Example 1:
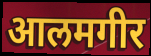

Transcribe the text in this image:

आलमगीर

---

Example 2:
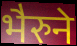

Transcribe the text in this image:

भैरुने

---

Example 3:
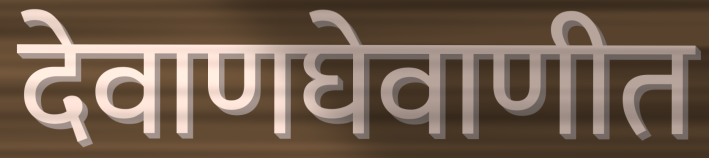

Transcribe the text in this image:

देवाणघेवाणीत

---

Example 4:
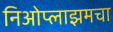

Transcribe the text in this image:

निओप्लाझमचा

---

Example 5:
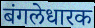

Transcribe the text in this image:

बंगलेधारक